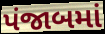
પંજાબમાં